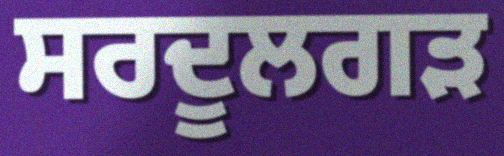
ਸਰਦੂਲਗੜ